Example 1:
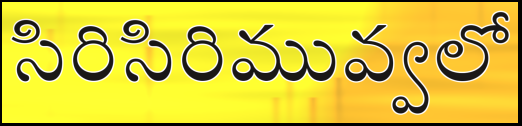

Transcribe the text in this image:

సిరిసిరిమువ్వలో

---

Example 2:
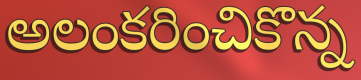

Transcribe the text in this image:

అలంకరించికొన్న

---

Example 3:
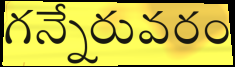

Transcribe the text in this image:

గన్నేరువరం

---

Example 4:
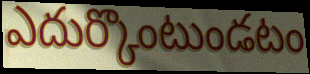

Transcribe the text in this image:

ఎదుర్కొంటుండటం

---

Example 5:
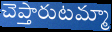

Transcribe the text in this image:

చెప్తారుటమ్మా